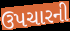
ઉપચારની